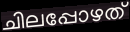
ചിലപ്പോഴത്